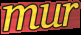
mur